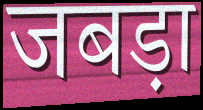
जबड़ा